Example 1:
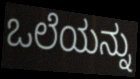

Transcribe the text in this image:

ಒಲೆಯನ್ನು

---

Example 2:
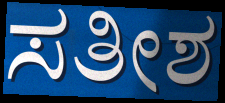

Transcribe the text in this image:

ಸತೀಶ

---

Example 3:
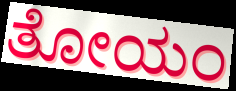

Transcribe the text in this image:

ತೋಯಂ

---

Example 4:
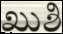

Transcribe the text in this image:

ಖುಶಿ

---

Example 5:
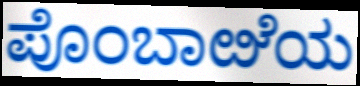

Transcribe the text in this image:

ಪೊಂಬಾೞೆಯ